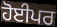
ਹੋਈਪਰ